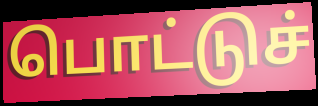
பொட்டுச்